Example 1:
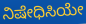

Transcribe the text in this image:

ನಿಷೇಧಿಸಿಯೇ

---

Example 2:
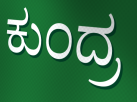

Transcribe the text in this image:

ಕುಂದ್ರ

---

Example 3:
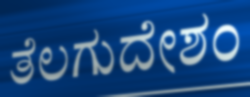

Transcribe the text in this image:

ತೆಲಗುದೇಶಂ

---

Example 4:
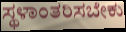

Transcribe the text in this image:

ಸ್ಥಳಾಂತರಿಸಬೇಕು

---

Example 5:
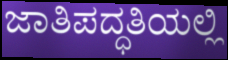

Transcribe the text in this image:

ಜಾತಿಪದ್ಧತಿಯಲ್ಲಿ